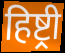
हिष्ट्री